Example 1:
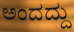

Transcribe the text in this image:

ಅಂದದ್ದು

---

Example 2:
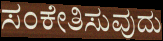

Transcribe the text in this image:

ಸಂಕೇತಿಸುವುದು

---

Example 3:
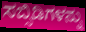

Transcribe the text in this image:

ಸಬ್ಸಿಡಿಗಳನ್ನು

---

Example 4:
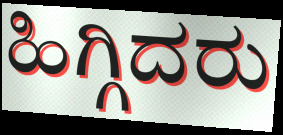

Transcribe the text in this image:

ಹಿಗ್ಗಿದರು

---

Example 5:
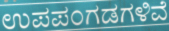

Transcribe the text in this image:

ಉಪಪಂಗಡಗಳಿವೆ